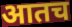
आतच